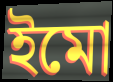
ইমো